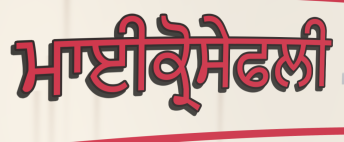
ਮਾਈਕ੍ਰੋਸੇਫਲੀ